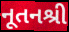
નૂતનશ્રી